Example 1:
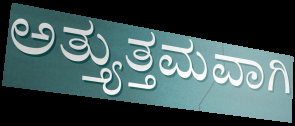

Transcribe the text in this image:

ಅತ್ತ್ಯುತ್ತಮವಾಗಿ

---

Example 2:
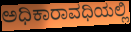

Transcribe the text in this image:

ಅಧಿಕಾರಾವಧಿಯಲ್ಲಿ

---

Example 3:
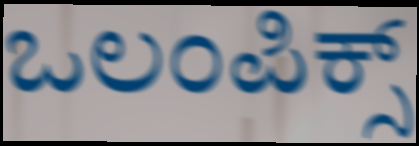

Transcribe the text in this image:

ಒಲಂಪಿಕ್ಸ್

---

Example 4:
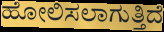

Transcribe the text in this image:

ಹೋಲಿಸಲಾಗುತ್ತಿದೆ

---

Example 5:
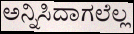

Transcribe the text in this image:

ಅನ್ನಿಸಿದಾಗಲೆಲ್ಲ